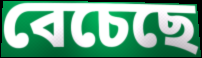
বেচেছে